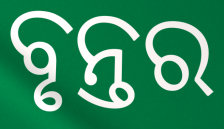
ବୃନ୍ତର